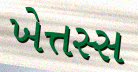
ખેત્તસ્સ